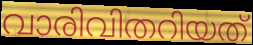
വാരിവിതറിയത്